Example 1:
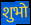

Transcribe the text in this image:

शुभो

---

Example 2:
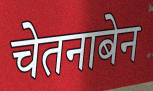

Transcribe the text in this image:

चेतनाबेन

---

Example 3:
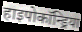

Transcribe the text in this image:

हाइपोकॉन्ड्रिया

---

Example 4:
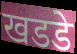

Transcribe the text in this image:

खडडे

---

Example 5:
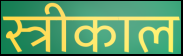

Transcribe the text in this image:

स्त्रीकाल